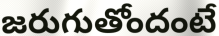
జరుగుతోందంటే